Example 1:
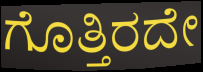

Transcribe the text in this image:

ಗೊತ್ತಿರದೇ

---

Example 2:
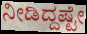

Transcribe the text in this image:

ನೀಡಿದ್ದಷ್ಟೇ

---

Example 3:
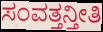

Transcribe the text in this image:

ಸಂವತ್ತನ್ತೀತಿ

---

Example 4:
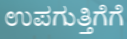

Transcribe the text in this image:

ಉಪಗುತ್ತಿಗೆಗೆ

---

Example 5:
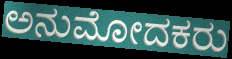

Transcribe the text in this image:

ಅನುಮೋದಕರು